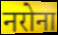
नरोना